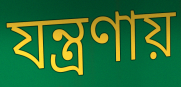
যন্ত্রণায়